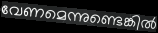
വേണമെന്നുണ്ടെങ്കിൽ